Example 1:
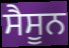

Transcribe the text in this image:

ਸੈਸੂਨ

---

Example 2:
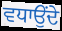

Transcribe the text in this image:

ਵਧਾਉਂਦੇ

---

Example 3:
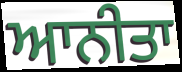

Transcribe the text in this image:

ਆਨੀਤਾ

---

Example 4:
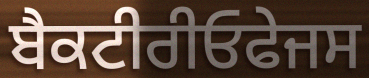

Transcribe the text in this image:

ਬੈਕਟੀਰੀਓਫੇਜਸ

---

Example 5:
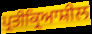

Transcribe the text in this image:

ਪ੍ਰਤੀਕ੍ਰਿਆਸ਼ੀਲ